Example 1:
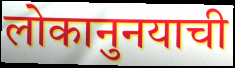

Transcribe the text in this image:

लोकानुनयाची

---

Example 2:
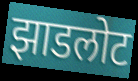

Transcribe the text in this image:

झाडलोट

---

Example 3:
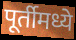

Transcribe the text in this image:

पूर्तीमध्ये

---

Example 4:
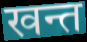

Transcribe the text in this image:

खन्त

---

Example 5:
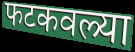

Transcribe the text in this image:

फटकवल्या